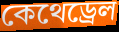
কেথেড্ৰেল